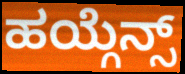
ಹಯ್ಗೆನ್ಸ್